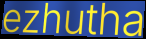
ezhutha